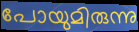
പോയുമിരുന്നു